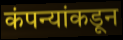
कंपन्यांकडून